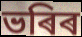
ভৰিৰ